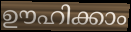
ഊഹിക്കാം